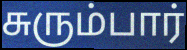
சுரும்பார்